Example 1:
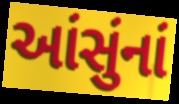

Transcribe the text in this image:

આંસુંનાં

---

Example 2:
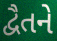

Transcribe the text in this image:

દ્વૈતને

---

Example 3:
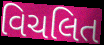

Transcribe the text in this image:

વિચલિત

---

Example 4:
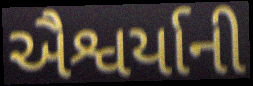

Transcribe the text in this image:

ઐશ્વર્યાની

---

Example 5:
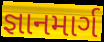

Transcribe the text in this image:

જ્ઞાનમાર્ગ